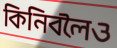
কিনিবলৈও